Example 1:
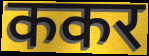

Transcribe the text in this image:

ककर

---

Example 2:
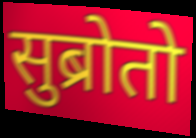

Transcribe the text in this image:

सुब्रोतो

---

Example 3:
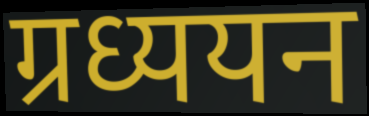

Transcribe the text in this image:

ग्रध्ययन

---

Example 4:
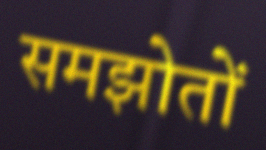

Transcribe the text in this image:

समझोतों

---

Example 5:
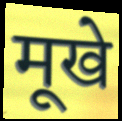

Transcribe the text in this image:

मूखे